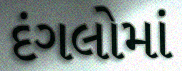
દંગલોમાં